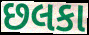
છલકા